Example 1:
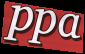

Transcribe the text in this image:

ppa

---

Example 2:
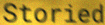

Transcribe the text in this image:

Storied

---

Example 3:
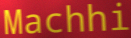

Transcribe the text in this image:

Machhi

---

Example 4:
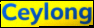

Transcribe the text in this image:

Ceylong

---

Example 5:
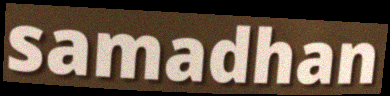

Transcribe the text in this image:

samadhan